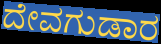
ದೇವಗುಡಾರ